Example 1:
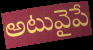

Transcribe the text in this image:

అటువైపే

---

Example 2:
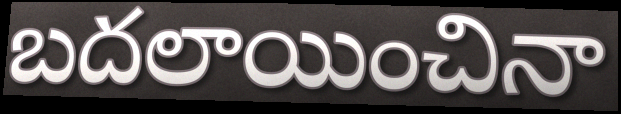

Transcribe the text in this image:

బదలాయించినా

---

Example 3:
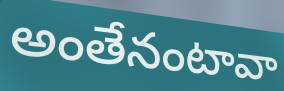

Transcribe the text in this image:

అంతేనంటావా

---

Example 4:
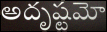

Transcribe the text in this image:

అదృష్టమో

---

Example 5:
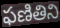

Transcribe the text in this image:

ఫణితిని